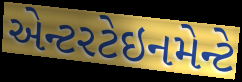
એન્ટરટેઇનમેન્ટે